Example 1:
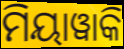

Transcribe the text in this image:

ମିୟାୱାକି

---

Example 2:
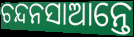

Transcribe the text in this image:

ଚନ୍ଦନସାଆନ୍ତେ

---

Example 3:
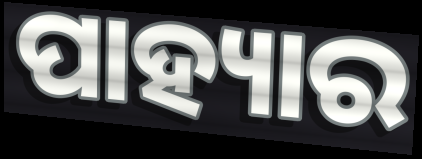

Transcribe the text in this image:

ପାହ୍ୟାର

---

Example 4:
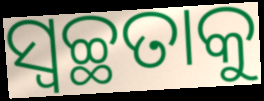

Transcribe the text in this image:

ସ୍ବଚ୍ଛତାକୁ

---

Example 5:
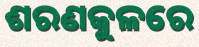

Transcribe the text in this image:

ଶରଣକୁଳରେ